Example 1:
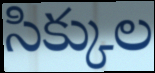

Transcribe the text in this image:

సిక్కుల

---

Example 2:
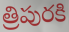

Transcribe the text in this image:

త్రిపురకి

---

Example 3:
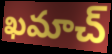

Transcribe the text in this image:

ఖమాచ్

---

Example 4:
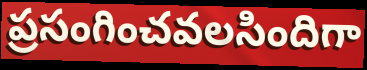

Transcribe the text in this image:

ప్రసంగించవలసిందిగా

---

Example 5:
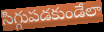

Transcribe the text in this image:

సిగ్గుపడకుండేలా